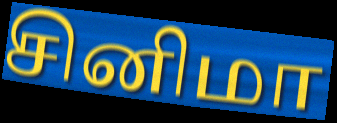
சினிமா